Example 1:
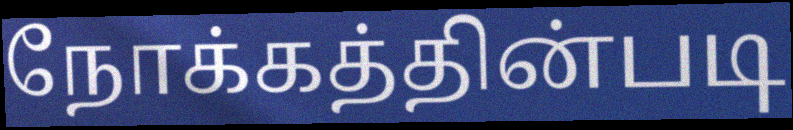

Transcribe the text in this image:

நோக்கத்தின்படி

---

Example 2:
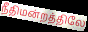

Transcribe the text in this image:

நீதிமன்றத்திலே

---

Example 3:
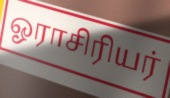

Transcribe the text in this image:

ஓராசிரியர்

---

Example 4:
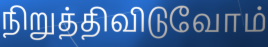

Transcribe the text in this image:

நிறுத்திவிடுவோம்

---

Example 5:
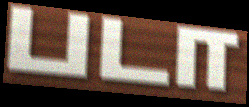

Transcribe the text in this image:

படா